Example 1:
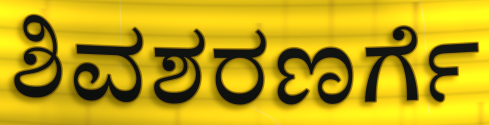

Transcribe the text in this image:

ಶಿವಶರಣರ್ಗೆ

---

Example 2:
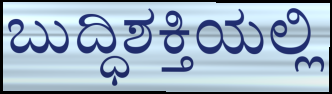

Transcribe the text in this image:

ಬುದ್ಧಿಶಕ್ತಿಯಲ್ಲಿ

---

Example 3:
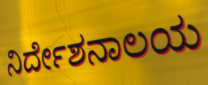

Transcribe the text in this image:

ನಿರ್ದೇಶನಾಲಯ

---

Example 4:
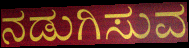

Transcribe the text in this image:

ನಡುಗಿಸುವ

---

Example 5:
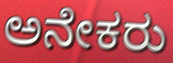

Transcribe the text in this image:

ಅನೇಕರು